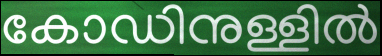
കോഡിനുള്ളിൽ